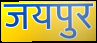
जयपुर